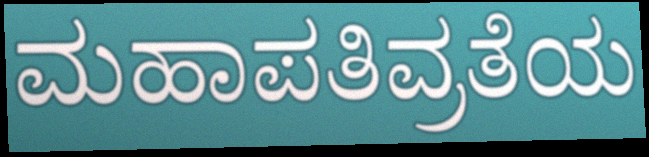
ಮಹಾಪತಿವ್ರತೆಯ